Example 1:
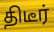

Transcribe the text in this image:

திடீர்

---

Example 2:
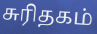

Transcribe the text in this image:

சுரிதகம்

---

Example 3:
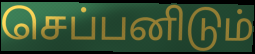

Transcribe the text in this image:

செப்பனிடும்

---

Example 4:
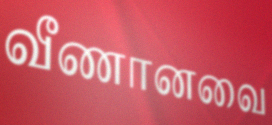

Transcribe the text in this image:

வீணானவை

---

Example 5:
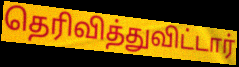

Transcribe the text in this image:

தெரிவித்துவிட்டார்